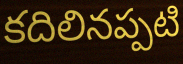
కదిలినప్పటి